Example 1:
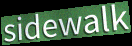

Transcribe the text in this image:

sidewalk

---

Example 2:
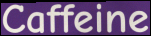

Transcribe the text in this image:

Caffeine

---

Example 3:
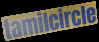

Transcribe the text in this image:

tamilcircle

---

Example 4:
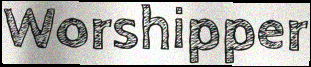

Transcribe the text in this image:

Worshipper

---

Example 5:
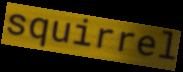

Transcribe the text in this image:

squirrel